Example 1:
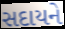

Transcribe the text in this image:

સદાયને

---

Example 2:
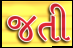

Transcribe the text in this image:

જતી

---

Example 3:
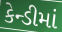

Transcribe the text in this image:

કેન્ડીમાં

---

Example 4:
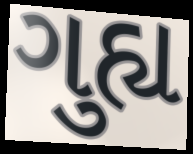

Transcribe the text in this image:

ગુહ્ય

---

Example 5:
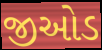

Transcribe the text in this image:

જીઓડ